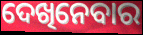
ଦେଖିନେବାର